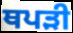
ਥਪੜੀ